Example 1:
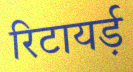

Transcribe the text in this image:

रिटायर्ड़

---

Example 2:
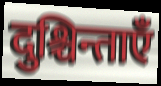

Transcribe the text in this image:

दुश्चिन्ताएँ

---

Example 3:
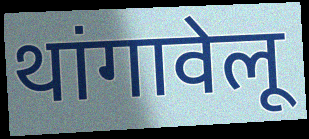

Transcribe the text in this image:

थांगावेलू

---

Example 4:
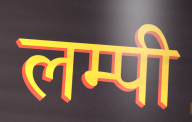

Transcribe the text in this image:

लम्पी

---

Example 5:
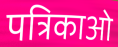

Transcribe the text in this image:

पत्रिकाओ